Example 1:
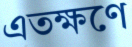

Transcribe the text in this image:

এতক্ষণে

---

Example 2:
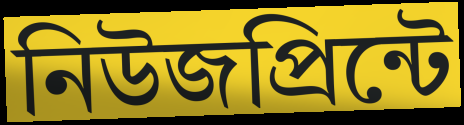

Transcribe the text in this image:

নিউজপ্রিন্টে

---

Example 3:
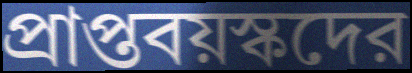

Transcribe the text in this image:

প্রাপ্তবয়স্কদের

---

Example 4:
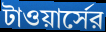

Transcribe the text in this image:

টাওয়ার্সের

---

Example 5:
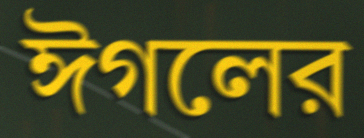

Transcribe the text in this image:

ঈগলের